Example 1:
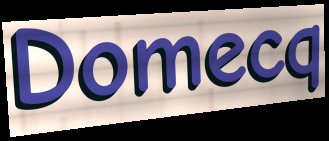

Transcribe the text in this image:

Domecq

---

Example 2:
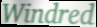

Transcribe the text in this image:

Windred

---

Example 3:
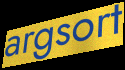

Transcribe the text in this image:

argsort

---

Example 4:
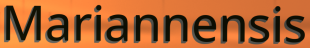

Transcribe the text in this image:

Mariannensis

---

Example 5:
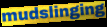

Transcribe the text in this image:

mudslinging